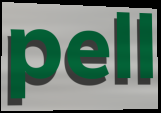
pell